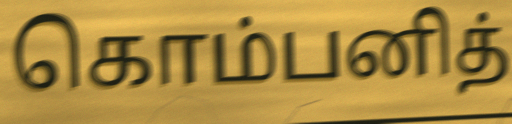
கொம்பனித்